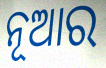
ନୂଆର